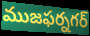
ముజఫర్నగర్